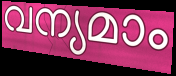
വന്യമാം